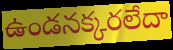
ఉండనక్కరలేదా